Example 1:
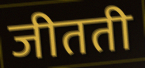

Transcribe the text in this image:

जीतती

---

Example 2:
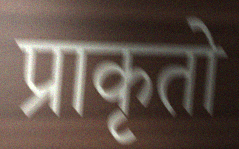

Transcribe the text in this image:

प्राकृतो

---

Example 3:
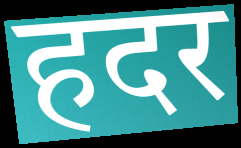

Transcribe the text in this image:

हदर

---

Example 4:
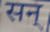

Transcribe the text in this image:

सन्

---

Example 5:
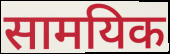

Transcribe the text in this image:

सामयिक